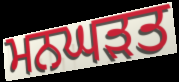
ਮਨਘੜਤ